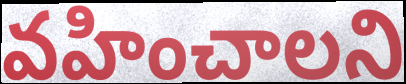
వహించాలని